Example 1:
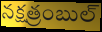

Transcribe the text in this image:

నక్షత్రంబుల్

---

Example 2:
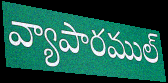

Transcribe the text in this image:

వ్యాపారముల్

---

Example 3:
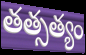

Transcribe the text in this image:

తత్సత్యం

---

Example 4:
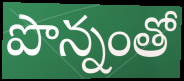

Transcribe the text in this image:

పొన్నంతో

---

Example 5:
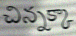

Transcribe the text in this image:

చిన్నక్కా